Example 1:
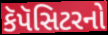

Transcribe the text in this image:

કૅપૅસિટરનો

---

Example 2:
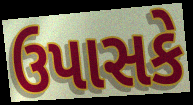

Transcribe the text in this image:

ઉપાસકે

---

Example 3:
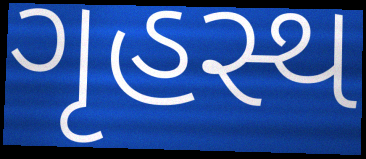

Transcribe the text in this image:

ગૃહસ્થ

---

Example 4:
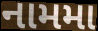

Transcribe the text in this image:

નામમા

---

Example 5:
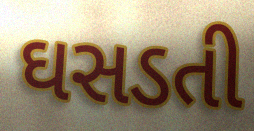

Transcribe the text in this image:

ઘસડતી